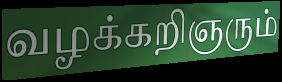
வழக்கறிஞரும்